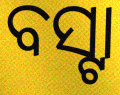
ବସ୍ଟା